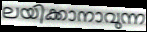
ലയിക്കാനാവുന്ന